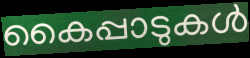
കൈപ്പാടുകൾ